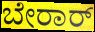
ಬೇರಾರ್